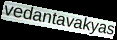
vedantavakyas